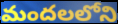
మందలలోని